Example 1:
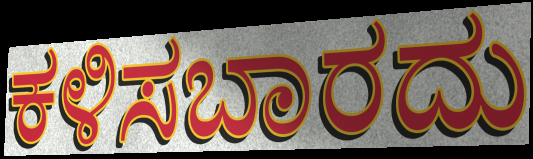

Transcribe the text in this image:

ಕಳಿಸಬಾರದು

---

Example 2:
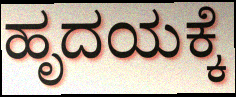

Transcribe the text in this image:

ಹೃದಯಕ್ಕೆ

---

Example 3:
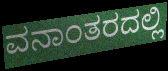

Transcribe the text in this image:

ವನಾಂತರದಲ್ಲಿ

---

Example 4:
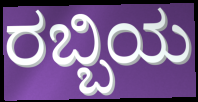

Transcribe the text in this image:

ರಬ್ಬಿಯ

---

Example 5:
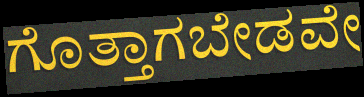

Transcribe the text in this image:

ಗೊತ್ತಾಗಬೇಡವೇ